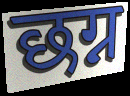
छग्न